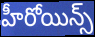
హీరోయిన్స్